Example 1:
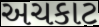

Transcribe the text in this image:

અચકાટ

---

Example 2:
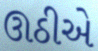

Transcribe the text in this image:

ઊઠીએ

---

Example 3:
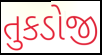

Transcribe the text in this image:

તુકડોજી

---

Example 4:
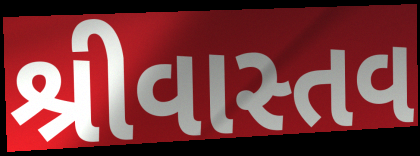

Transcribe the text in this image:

શ્રીવાસ્તવ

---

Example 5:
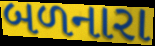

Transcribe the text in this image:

બળનારા